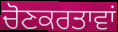
ਚੋਣਕਰਤਾਵਾਂ